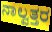
ನಾಲ್ವತ್ತರ